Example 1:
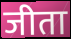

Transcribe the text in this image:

जीता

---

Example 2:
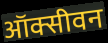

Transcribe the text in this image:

ऑक्सीवन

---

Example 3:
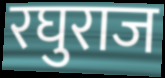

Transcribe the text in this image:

रघुराज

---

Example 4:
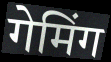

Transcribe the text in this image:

गेमिंग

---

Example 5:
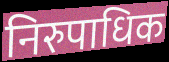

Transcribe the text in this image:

निरुपाधिक